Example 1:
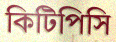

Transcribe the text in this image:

কিটিপিসি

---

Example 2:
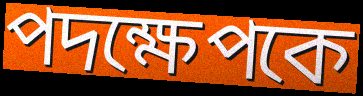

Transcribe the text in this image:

পদক্ষেপকে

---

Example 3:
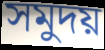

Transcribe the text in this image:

সমুদয়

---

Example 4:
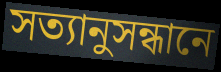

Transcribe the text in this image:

সত্যানুসন্ধানে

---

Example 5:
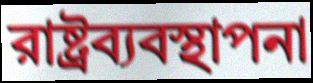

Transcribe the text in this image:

রাষ্ট্রব্যবস্থাপনা